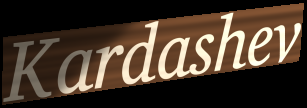
Kardashev